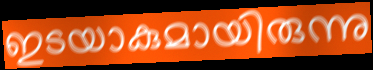
ഇടയാകുമായിരുന്നു